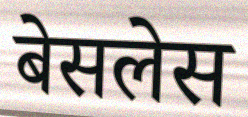
बेसलेस